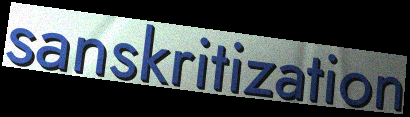
sanskritization